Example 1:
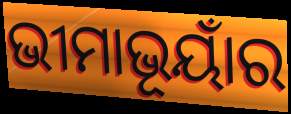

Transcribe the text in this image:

ଭୀମାଭୂୟାଁର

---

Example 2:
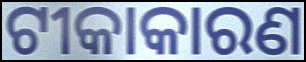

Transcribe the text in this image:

ଟୀକାକାରଣ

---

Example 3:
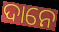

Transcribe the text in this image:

ଦାନେ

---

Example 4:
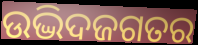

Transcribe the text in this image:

ଉଦ୍ଭିଦଜଗତର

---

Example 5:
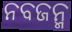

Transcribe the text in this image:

ନବଜନ୍ମ